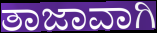
ತಾಜಾವಾಗಿ